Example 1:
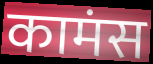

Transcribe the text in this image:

कामंस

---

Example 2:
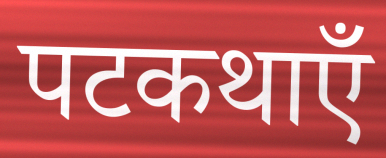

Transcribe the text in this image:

पटकथाएँ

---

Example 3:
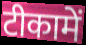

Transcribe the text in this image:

टीकामें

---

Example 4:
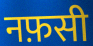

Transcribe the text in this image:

नफ़सी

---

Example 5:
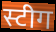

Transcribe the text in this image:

स्टीग